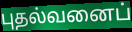
புதல்வனைப்